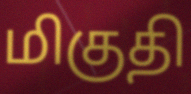
மிகுதி